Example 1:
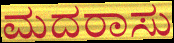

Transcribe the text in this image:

ಮದರಾಸು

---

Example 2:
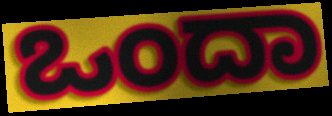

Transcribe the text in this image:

ಒಂದಾ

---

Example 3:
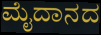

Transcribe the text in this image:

ಮೈದಾನದ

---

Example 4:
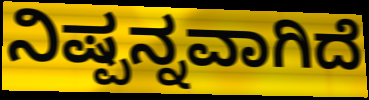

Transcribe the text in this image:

ನಿಷ್ಪನ್ನವಾಗಿದೆ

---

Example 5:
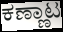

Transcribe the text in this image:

ಕಣ್ಣಾಟ